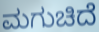
ಮಗುಚಿದೆ